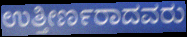
ಉತ್ತೀರ್ಣರಾದವರು